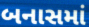
બનાસમાં